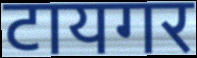
टायगर